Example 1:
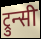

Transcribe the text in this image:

ट्रुन्सी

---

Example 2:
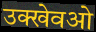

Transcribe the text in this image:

उक्खेवओ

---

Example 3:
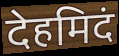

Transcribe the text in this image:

देहमिदं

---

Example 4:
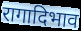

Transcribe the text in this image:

रागादिभाव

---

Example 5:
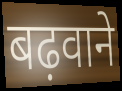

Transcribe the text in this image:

बढ़वाने